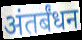
अंतर्बंधन